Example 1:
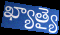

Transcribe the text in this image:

ఖ్యాత్యై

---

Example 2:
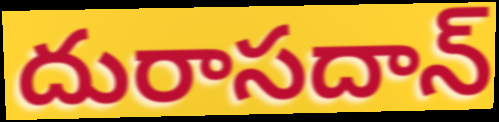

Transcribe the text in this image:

దురాసదాన్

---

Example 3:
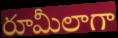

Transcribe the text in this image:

రూమీలాగా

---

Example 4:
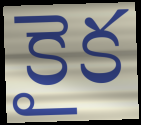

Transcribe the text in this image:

కైక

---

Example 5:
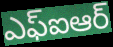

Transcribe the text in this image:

ఎఫ్ఐఆర్